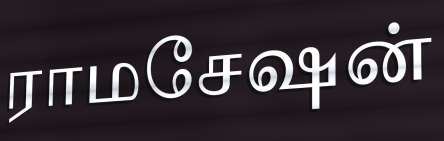
ராமசேஷன்